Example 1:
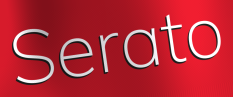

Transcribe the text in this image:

Serato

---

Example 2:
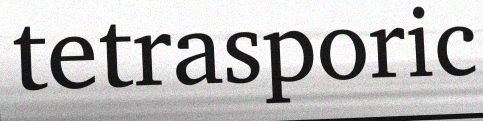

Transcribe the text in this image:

tetrasporic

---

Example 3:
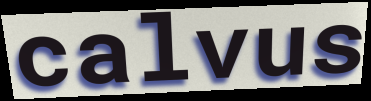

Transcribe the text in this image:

calvus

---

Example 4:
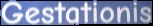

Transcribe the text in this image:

Gestationis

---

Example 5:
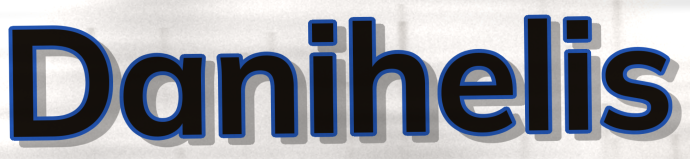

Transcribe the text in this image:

Danihelis